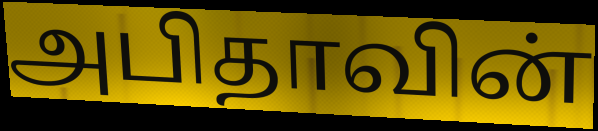
அபிதாவின்